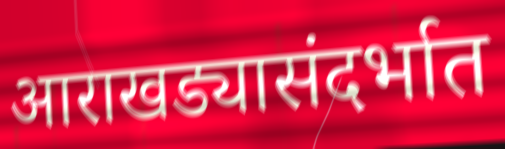
आराखड्यासंदर्भात